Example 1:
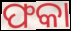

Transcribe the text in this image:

ଫକା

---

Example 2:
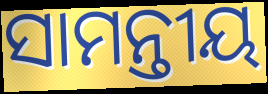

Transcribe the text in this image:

ସାମନ୍ତୀୟ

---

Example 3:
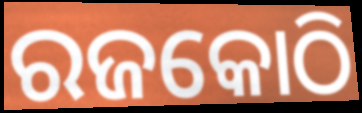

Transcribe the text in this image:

ରଜକୋଠି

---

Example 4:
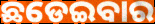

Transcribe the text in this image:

ଛଡେଇବାର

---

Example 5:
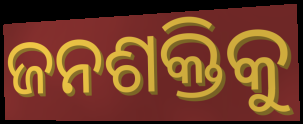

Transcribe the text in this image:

ଜନଶକ୍ତିକୁ